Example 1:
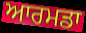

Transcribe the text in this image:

ਆਰਮਡਾ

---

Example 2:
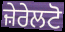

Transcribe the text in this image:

ਜ਼ੇਰੇਲਟੋ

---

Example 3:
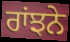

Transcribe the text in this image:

ਰਾਂਝਨੇ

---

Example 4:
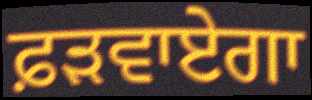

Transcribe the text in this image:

ਫ਼ੜਵਾਏਗਾ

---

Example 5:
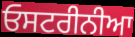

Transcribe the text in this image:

ਓਸਟਰੀਨੀਆ